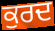
ਕੁਰਦ